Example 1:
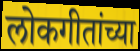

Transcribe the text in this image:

लोकगीतांच्या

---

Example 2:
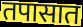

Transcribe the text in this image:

तपासात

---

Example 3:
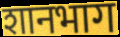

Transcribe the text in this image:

शानभाग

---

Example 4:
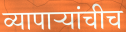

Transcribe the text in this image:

व्यापाऱ्यांचीच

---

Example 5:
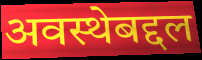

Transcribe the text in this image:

अवस्थेबद्दल